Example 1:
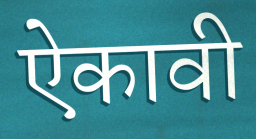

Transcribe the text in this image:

ऐकावी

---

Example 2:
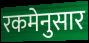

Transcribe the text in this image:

रकमेनुसार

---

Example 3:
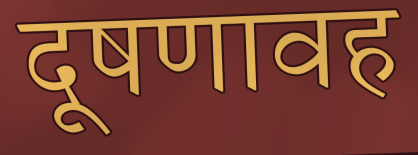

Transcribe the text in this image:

दूषणावह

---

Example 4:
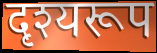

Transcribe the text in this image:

दृश्यरूप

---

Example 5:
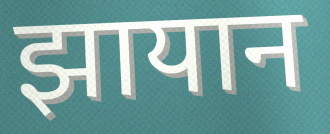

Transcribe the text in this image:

झायान